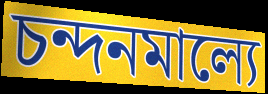
চন্দনমাল্যে